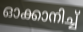
ഓക്കാനിച്ച്